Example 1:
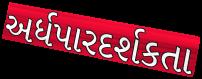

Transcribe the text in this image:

અર્ધપારદર્શકતા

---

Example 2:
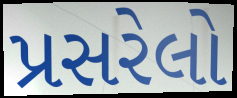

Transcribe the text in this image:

પ્રસરેલો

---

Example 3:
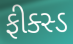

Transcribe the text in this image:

ફીક્સ્ડ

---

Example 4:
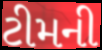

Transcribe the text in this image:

ટીમની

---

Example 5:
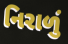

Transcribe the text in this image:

નિરાળું